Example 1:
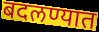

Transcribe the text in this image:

बदलण्यात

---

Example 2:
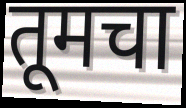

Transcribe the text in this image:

तूमचा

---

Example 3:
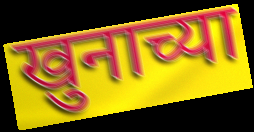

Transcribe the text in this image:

खुनाच्या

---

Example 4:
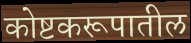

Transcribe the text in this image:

कोष्टकरूपातील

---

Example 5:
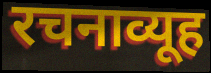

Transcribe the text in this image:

रचनाव्यूह